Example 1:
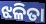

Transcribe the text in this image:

ଝଳିତା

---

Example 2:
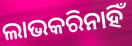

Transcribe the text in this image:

ଲାଭକରିନାହିଁ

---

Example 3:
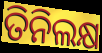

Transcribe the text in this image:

ତିନିଲକ୍ଷ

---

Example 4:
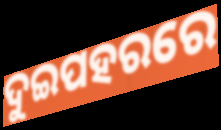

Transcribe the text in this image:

ଦୁଇପହରରେ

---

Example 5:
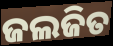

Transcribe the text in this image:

ଜଲଜିତ